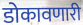
डोकावणारी